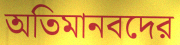
অতিমানবদের